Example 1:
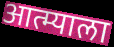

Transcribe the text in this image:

आत्म्याला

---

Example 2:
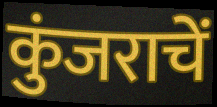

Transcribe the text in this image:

कुंजराचें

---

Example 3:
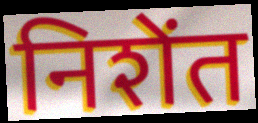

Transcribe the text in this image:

निशेंत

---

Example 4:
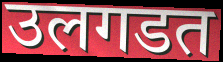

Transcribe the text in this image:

उलगडत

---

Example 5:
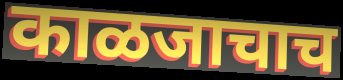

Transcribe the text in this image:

काळजाचाच